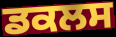
ਡਕਲਸ